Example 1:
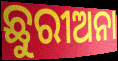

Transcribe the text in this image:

ଛୁରୀଅନା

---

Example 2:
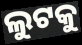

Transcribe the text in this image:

ଲୁଟକୁ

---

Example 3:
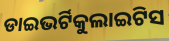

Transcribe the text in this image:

ଡାଇଭର୍ଟିକୁଲାଇଟିସ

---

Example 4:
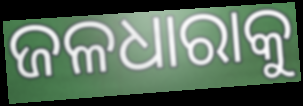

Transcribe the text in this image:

ଜଳଧାରାକୁ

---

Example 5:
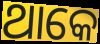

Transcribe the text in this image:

ଥାକେ